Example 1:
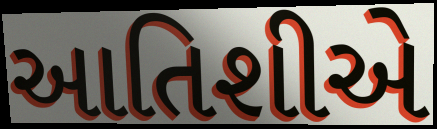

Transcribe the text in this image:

આતિશીએ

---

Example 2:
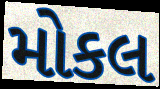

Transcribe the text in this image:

મોકલ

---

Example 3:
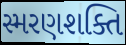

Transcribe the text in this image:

સ્મરણશક્તિ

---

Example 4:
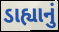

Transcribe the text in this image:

ડાહ્યાનું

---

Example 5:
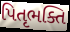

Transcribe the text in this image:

પિતૃભક્તિ